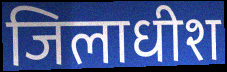
जिलाधीश